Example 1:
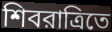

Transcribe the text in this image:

শিবরাত্রিতে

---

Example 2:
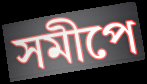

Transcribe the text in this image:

সমীপে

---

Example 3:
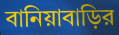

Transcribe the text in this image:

বানিয়াবাড়ির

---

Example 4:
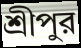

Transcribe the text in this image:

শ্রীপুর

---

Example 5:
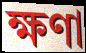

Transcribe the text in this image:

ক্ষণা